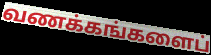
வணக்கங்களைப்